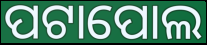
ପଟାପୋଲ